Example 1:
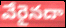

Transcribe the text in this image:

వేరైనదా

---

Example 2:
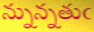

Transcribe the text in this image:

న్నున్నతుఁ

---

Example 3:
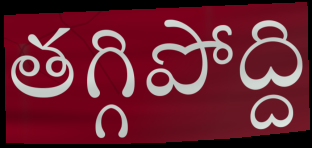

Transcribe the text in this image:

తగ్గిపోద్ది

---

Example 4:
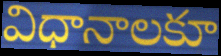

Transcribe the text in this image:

విధానాలకూ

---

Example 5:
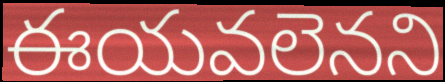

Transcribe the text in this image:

ఈయవలెనని